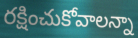
రక్షించుకోవాలన్నా